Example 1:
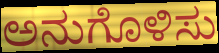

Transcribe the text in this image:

ಅನುಗೊಳಿಸು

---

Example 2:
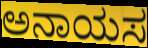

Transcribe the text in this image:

ಅನಾಯಸ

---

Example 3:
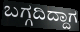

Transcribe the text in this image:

ಬಗ್ಗದಿದ್ದಾಗ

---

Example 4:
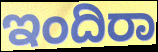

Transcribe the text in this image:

ಇಂದಿರಾ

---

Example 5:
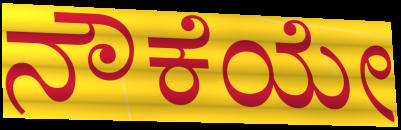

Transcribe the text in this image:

ನೌಕೆಯೇ